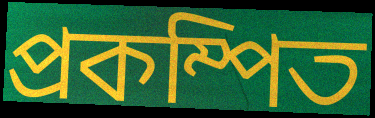
প্রকম্পিত